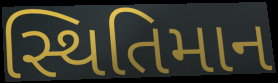
સ્થિતિમાન